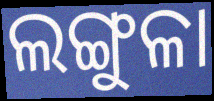
ଲଙ୍ଗୁଳା